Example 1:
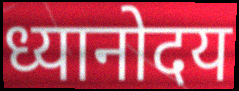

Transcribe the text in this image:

ध्यानोदय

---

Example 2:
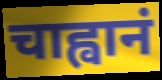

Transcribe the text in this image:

चाह्वानं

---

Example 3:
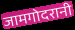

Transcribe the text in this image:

जामगोदरानी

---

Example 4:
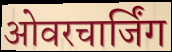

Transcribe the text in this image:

ओवरचार्जिंग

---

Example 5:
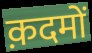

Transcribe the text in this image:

क़दमों